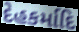
દેહકર્માદિ